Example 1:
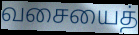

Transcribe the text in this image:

வசையைத்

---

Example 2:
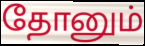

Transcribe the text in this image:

தோனும்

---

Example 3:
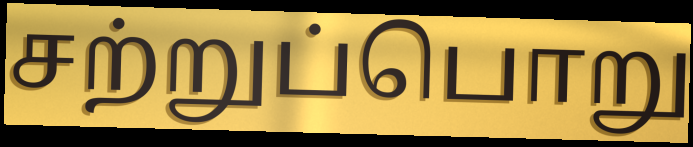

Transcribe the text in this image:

சற்றுப்பொறு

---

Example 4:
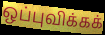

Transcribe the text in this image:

ஒப்புவிக்கக்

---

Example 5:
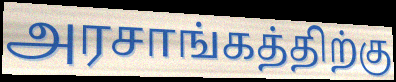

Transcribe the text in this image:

அரசாங்கத்திற்கு